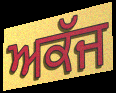
ਅਕੱਜ